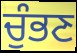
ਚੁੰਭਣ